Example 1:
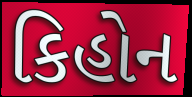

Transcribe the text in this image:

કિહોન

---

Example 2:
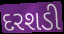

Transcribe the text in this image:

દરશડી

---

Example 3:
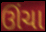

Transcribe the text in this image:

ઊંચા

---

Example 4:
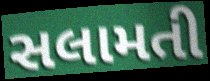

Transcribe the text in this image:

સલામતી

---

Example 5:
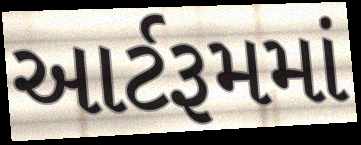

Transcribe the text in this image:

આર્ટરૂમમાં